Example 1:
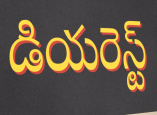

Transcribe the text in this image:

డియరెస్ట్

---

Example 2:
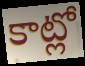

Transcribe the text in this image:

కాట్లో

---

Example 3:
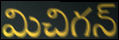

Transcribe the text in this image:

మిచిగన్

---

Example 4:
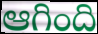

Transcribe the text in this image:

ఆగింది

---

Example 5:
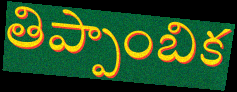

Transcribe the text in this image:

తిప్పాంబిక